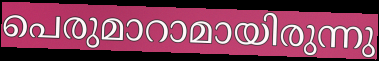
പെരുമാറാമായിരുന്നു